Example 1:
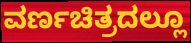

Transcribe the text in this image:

ವರ್ಣಚಿತ್ರದಲ್ಲೂ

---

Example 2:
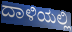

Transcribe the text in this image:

ದಾಳಿಯಲ್ಲಿ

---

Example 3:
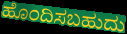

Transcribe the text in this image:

ಹೊಂದಿಸಬಹುದು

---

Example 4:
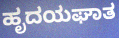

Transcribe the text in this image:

ಹೃದಯಘಾತ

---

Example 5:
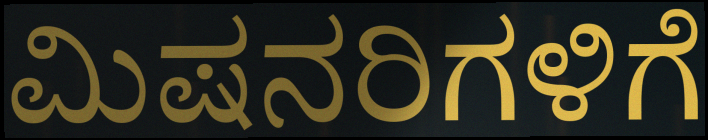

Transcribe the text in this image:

ಮಿಷನರಿಗಳಿಗೆ